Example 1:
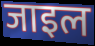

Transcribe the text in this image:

जाइल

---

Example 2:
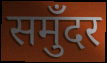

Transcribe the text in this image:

समुँदर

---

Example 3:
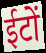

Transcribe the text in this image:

ईटों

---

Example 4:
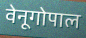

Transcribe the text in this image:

वेनूगोपाल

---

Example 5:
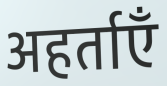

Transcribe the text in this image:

अहर्ताएँ